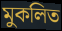
মুকলিত